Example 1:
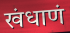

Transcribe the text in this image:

खंधाणं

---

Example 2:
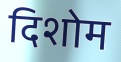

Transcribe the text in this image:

दिशोम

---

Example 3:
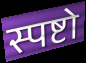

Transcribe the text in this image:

स्पष्टो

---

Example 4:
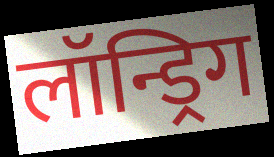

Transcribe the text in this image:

लॉन्ड्रिग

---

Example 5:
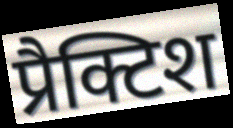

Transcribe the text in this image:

प्रैक्टिश